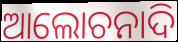
ଆଲୋଚନାଦି